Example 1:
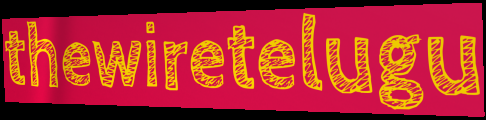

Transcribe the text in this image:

thewiretelugu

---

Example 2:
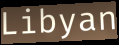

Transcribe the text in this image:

Libyan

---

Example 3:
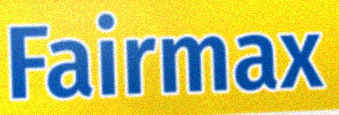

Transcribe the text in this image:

Fairmax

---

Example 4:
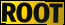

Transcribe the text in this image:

ROOT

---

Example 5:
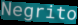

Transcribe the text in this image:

Negrito